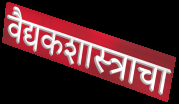
वैद्यकशास्त्राचा